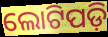
ଲୋଟିପଡ଼ି